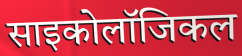
साइकोलॉजिकल